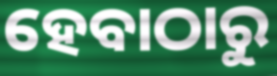
ହେବାଠାରୁ